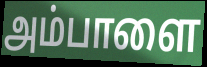
அம்பாளை